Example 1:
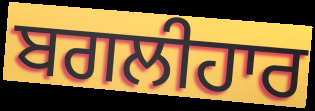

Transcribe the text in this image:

ਬਗਲੀਹਾਰ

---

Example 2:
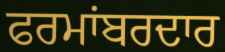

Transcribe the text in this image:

ਫਰਮਾਂਬਰਦਾਰ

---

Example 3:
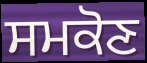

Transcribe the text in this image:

ਸਮਕੋਣ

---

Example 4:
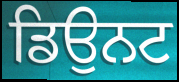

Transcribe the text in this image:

ਡਿਉਨਟ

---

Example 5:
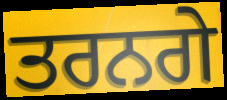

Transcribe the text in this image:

ਤਰਨਗੇ